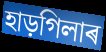
হাড়গিলাৰ